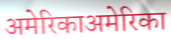
अमेरिकाअमेरिका